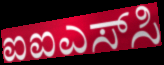
ಐಐಎಸ್‌ಸಿ